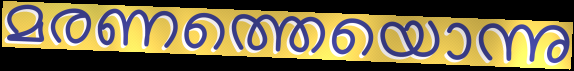
മരണത്തെയൊന്നു